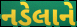
નડેલાને